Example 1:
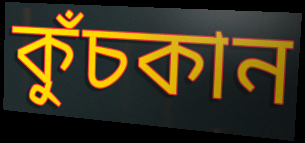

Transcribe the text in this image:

কুঁচকান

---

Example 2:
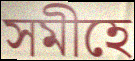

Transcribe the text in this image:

সমীহে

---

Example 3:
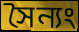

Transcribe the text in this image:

সৈন্যং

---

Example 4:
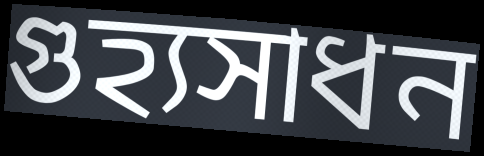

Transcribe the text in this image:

গুহ্যসাধন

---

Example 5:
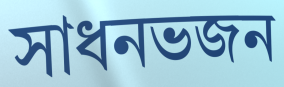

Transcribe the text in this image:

সাধনভজন